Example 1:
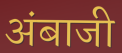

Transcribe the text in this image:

अंबाजी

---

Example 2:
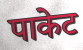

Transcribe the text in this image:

पाकेट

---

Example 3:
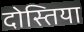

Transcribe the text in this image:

दोस्तिया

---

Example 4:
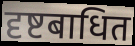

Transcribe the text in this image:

दृष्टबाधित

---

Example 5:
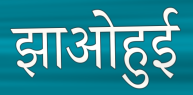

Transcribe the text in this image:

झाओहुई